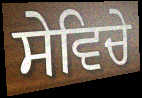
ਸੇਵਿਚੇ